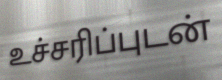
உச்சரிப்புடன்